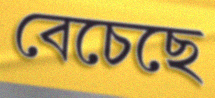
বেচেছে